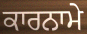
ਕਾਰਨਾਮੇ